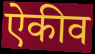
ऐकीव